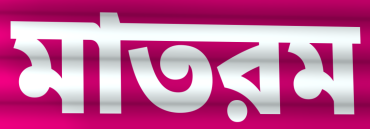
মাতরম